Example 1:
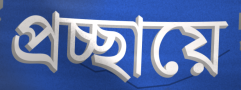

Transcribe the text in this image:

প্রচ্ছায়ে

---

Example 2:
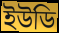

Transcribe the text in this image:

ইউডি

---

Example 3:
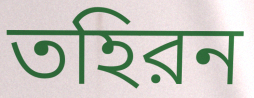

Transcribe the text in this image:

তহিরন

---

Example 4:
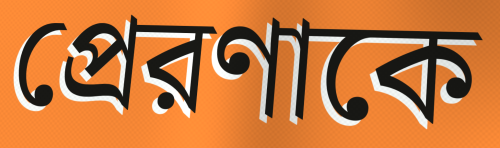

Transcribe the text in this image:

প্রেরণাকে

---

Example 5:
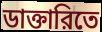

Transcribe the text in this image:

ডাক্তারিতে